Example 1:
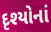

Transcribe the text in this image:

દૃશ્યોનાં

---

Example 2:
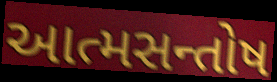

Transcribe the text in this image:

આત્મસન્તોષ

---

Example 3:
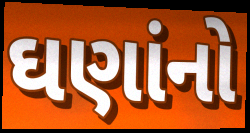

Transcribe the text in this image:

ઘણાંનો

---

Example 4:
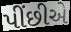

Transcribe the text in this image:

પીંછીએ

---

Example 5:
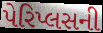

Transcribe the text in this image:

પેરિપ્લસની